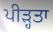
ਪੀੜ੍ਹਤਾ